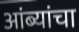
आंब्यांचा